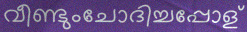
വീണ്ടുംചോദിച്ചപ്പോള്